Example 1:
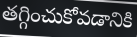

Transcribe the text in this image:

తగ్గించుకోవడానికి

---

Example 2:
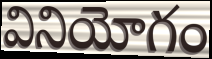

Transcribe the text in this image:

వినియోగం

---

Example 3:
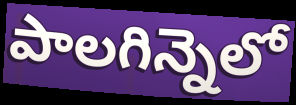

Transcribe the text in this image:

పాలగిన్నెలో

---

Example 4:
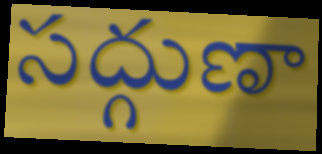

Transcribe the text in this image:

సద్గుణా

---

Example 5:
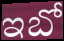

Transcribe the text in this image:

ఇబో